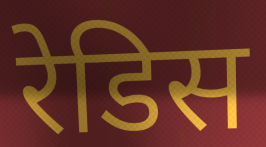
रेडिस